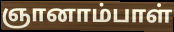
ஞானாம்பாள்